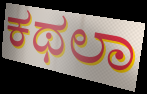
ಕಥಲಾ